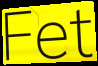
Fet